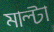
মাল্টা